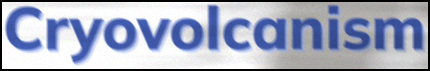
Cryovolcanism